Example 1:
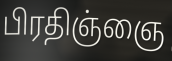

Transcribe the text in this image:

பிரதிஞ்ஞை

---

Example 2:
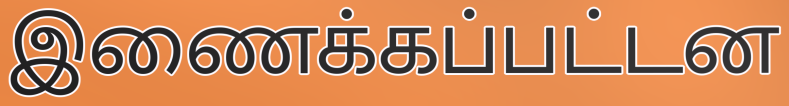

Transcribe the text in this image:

இணைக்கப்பட்டன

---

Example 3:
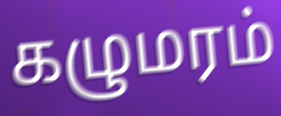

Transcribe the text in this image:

கழுமரம்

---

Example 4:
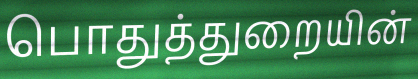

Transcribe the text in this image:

பொதுத்துறையின்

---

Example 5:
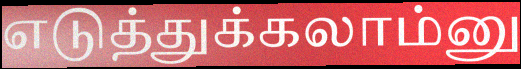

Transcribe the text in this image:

எடுத்துக்கலாம்னு